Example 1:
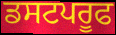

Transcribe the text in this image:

ਡਸਟਪਰੂਫ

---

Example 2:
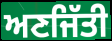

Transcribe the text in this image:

ਅਣਜਿੱਤੀ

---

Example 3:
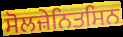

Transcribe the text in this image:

ਸੋਲਜ਼ੇਨਿਤਸਿਨ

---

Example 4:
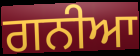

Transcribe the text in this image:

ਗਨੀਆ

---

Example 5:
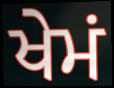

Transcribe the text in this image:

ਖੇਮਂ